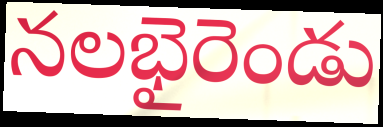
నలభైరెండు